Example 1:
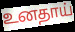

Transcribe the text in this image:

உனதாய்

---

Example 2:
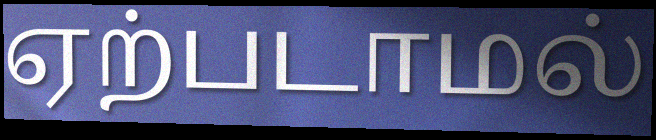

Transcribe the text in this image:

ஏற்படாமல்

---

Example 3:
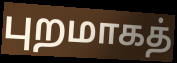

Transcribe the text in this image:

புறமாகத்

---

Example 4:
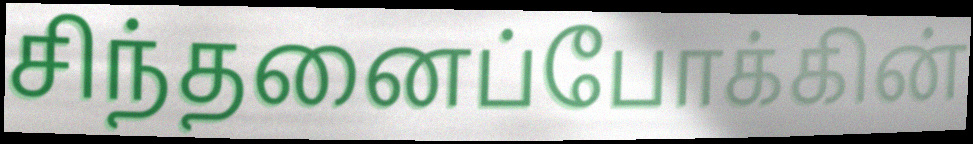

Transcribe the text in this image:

சிந்தனைப்போக்கின்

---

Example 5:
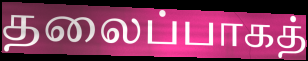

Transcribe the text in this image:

தலைப்பாகத்